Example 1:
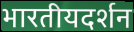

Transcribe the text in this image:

भारतीयदर्शन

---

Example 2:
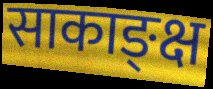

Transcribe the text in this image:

साकाङ्क्ष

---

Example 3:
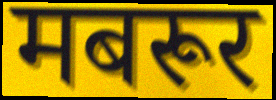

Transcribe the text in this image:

मबरूर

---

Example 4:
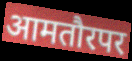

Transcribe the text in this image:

आमतौरपर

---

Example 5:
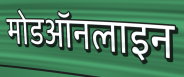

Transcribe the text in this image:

मोडऑनलाइन